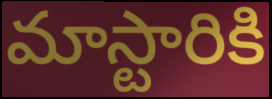
మాస్టారికి